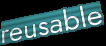
reusable